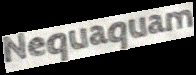
Nequaquam